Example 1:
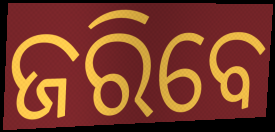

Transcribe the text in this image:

ଜରିବେ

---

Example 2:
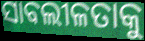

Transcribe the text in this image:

ସାବଲୀଳତାକୁ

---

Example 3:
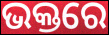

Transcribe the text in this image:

ଭକ୍ତରେ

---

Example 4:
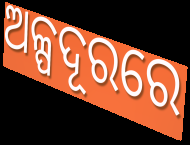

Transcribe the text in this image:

ଅଳ୍ପଦୂରରେ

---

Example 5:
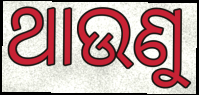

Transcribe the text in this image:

ଥାଉଣୁ